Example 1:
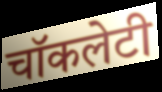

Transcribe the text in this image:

चॉकलेटी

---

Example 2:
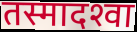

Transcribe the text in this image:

तस्मादश्वा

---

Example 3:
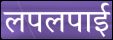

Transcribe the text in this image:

लपलपाई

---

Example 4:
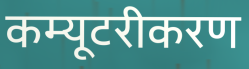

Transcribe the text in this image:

कम्यूटरीकरण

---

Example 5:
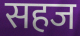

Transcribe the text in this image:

सहज